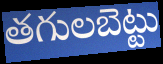
తగులబెట్టు